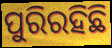
ପୁରିରହିଛି